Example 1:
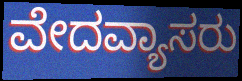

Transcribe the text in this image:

ವೇದವ್ಯಾಸರು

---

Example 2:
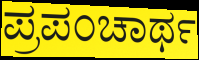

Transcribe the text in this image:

ಪ್ರಪಂಚಾರ್ಥ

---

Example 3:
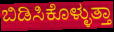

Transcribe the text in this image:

ಬಿಡಿಸಿಕೊಳ್ಳುತ್ತಾ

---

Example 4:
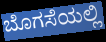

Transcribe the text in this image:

ಬೊಗಸೆಯಲ್ಲಿ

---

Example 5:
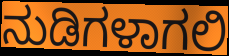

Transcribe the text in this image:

ನುಡಿಗಳಾಗಲಿ